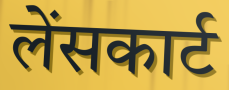
लेंसकार्ट